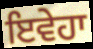
ਇਵੇਹਾ